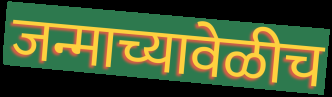
जन्माच्यावेळीच